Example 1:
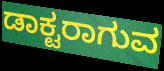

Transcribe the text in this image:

ಡಾಕ್ಟರಾಗುವ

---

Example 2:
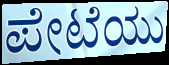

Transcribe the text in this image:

ಪೇಟೆಯು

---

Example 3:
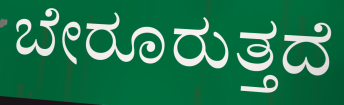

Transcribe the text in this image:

ಬೇರೂರುತ್ತದೆ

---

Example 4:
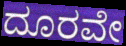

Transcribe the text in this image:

ದೂರವೇ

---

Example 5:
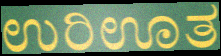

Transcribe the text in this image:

ಉರಿಊತ